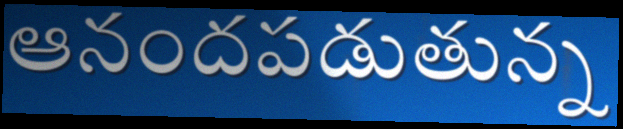
ఆనందపడుతున్న